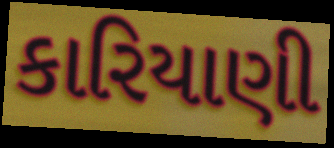
કારિયાણી